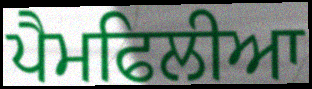
ਪੈਮਫਿਲੀਆ